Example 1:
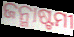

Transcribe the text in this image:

ଜନ୍ମାଷ୍ଟମୀ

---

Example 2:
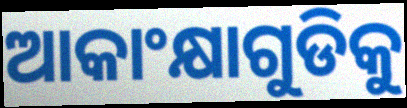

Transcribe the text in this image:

ଆକାଂକ୍ଷାଗୁଡିକୁ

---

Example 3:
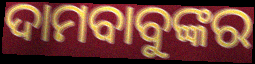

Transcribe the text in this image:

ଦାମବାବୁଙ୍କର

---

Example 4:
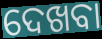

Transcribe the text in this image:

ଦେଖବା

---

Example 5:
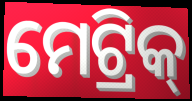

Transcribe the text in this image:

ମେଟ୍ରିକ୍